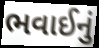
ભવાઈનું